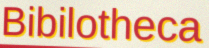
Bibilotheca